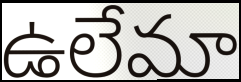
ఉలేమా